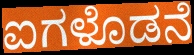
ಐಗಳೊಡನೆ